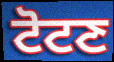
ਟੋਟਣ